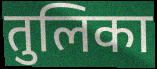
तुलिका